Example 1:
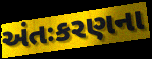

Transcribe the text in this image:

અંતઃકરણના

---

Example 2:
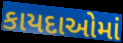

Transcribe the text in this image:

કાયદાઓમાં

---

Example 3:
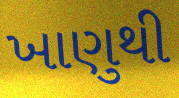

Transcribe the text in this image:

ખાણુથી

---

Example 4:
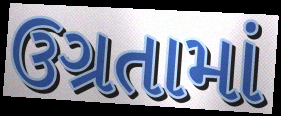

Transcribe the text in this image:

ઉગ્રતામાં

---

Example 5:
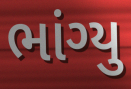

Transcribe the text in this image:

ભાંગ્યુ